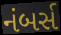
નંબર્સ